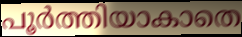
പൂർത്തിയാകാതെ